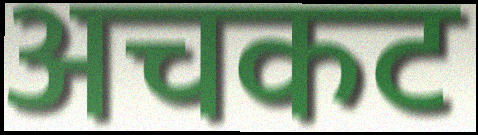
अचकट